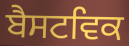
ਬੈਸਟਵਿਕ